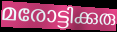
മരോട്ടിക്കുരു